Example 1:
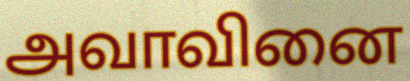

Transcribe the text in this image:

அவாவினை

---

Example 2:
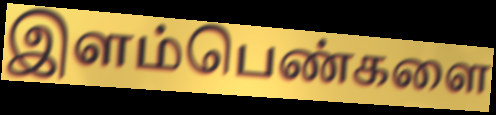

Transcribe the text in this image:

இளம்பெண்களை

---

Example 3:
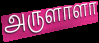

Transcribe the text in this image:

அருளாளா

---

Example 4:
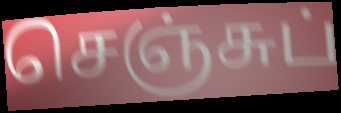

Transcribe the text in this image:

செஞ்சுப்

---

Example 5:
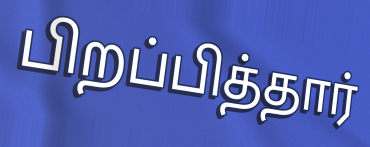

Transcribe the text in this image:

பிறப்பித்தார்